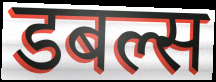
डबल्स